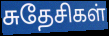
சுதேசிகள்